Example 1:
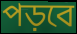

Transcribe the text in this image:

পড়বে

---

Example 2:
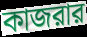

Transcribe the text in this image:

কাজরার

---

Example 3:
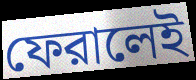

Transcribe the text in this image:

ফেরালেই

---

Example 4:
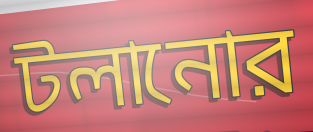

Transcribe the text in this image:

টলানোর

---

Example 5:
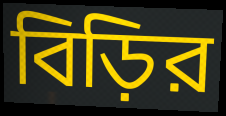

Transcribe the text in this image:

বিড়ির